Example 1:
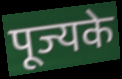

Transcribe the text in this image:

पूज्यके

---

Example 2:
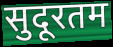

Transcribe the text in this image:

सुदूरतम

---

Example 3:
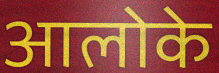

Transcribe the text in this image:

आलोके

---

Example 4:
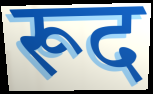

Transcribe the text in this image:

रूद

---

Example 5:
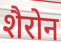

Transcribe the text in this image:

शैरोन